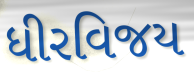
ધીરવિજય